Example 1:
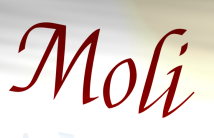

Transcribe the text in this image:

Moli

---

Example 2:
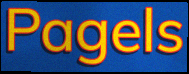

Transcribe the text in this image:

Pagels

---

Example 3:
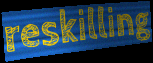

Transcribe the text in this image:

reskilling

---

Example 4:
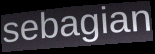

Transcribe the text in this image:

sebagian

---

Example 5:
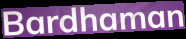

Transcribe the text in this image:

Bardhaman